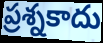
ప్రశ్నకాదు